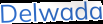
Delwada